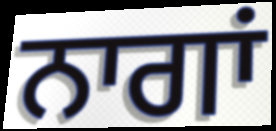
ਨਾਗਾਂ